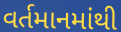
વર્તમાનમાંથી